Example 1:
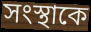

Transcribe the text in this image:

সংস্থাকে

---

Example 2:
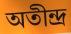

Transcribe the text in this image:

অতীন্দ্র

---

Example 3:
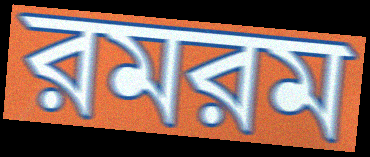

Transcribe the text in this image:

রমরম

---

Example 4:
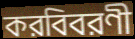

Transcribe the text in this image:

করবিবরণী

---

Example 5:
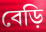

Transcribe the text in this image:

বেড়ি